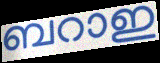
ബറാഇ